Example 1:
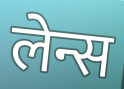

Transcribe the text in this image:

लेन्स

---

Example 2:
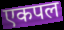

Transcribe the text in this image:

एकपल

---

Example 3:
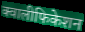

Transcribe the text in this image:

क्वालीफिकेशन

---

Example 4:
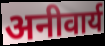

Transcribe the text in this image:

अनीवार्य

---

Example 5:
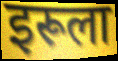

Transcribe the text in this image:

इरूला